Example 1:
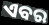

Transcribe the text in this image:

ଏବର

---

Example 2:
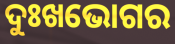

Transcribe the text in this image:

ଦୁଃଖଭୋଗର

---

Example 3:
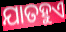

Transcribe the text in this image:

ଯାତହୁଏ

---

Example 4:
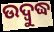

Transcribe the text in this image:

ଉଦ୍ବୁଦ୍ଧ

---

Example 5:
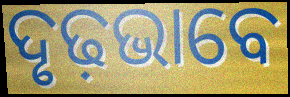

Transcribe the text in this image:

ଦୃଢ଼ଭାବେ